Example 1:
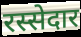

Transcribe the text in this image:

रस्सेदार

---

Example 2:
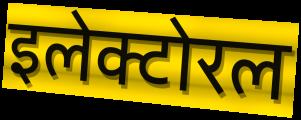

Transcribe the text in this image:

इलेक्टोरल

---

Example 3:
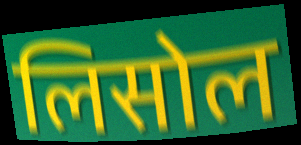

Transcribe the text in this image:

लिसोल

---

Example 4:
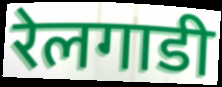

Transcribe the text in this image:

रेलगाडी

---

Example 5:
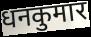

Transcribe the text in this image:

धनकुमार